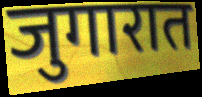
जुगारात